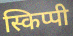
स्किप्पी